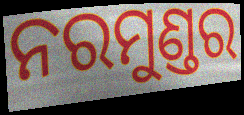
ନରମୁଣ୍ଡର